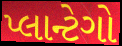
પ્લાન્ટેગો